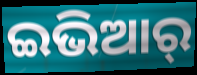
ଇଭିଆର୍